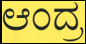
ಆಂದ್ರ